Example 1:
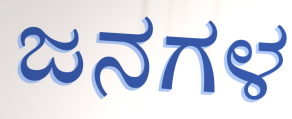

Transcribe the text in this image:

ಜನಗಳ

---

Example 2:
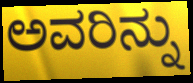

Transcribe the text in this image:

ಅವರಿನ್ನು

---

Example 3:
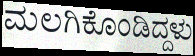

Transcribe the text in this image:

ಮಲಗಿಕೊಂಡಿದ್ದಳು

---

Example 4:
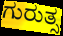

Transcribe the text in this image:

ಗುರುತ್ಸ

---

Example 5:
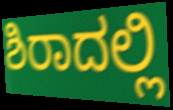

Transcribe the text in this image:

ಶಿರಾದಲ್ಲಿ